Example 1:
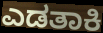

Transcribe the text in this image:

ಎಡತಾಕಿ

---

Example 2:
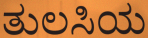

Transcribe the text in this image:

ತುಲಸಿಯ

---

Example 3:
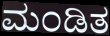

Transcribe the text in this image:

ಮಂಡಿತ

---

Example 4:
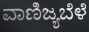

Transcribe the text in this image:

ವಾಣಿಜ್ಯಬೆಳೆ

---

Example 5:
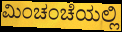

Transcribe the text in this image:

ಮಿಂಚಂಚೆಯಲ್ಲಿ